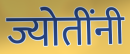
ज्योतींनी